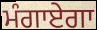
ਮੰਗਾਏਗਾ